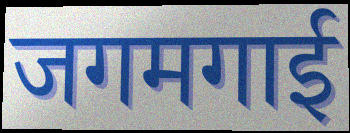
जगमगाई